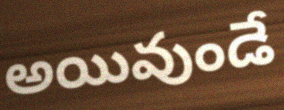
అయివుండే